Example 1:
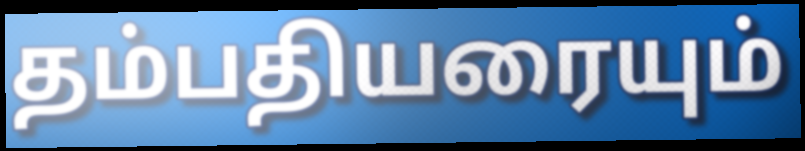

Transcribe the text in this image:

தம்பதியரையும்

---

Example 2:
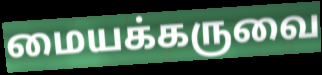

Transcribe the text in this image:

மையக்கருவை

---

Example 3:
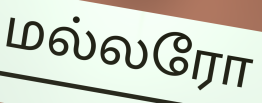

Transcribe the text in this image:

மல்லரோ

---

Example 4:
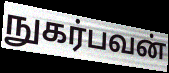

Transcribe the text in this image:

நுகர்பவன்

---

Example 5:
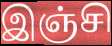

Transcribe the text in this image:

இஞ்சி